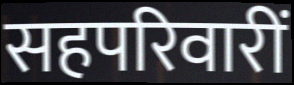
सहपरिवारीं